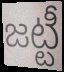
జట్టీ